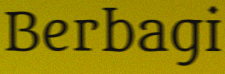
Berbagi